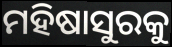
ମହିଷାସୁରକୁ